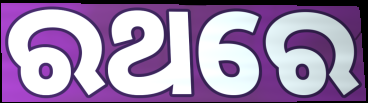
ରଥରେ